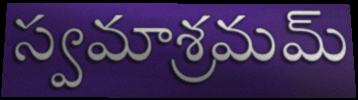
స్వమాశ్రమమ్